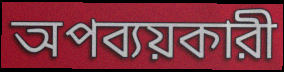
অপব্যয়কারী